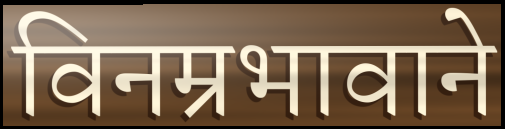
विनम्रभावाने